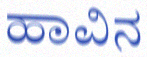
ಹಾವಿನ